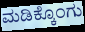
ಮಡಿಕ್ಕೊಂಗು